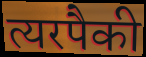
त्यरपैकी